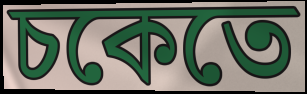
চকেতে